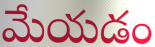
మేయడం